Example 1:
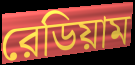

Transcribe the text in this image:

রেডিয়াম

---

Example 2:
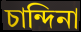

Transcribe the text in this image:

চান্দিনা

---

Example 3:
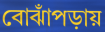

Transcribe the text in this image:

বোঝাঁপড়ায়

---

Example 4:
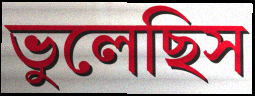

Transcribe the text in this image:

ভুলেছিস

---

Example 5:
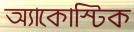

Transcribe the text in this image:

অ্যাকোস্টিক